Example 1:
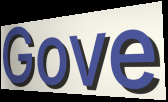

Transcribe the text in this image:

Gove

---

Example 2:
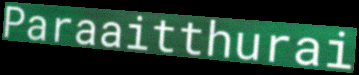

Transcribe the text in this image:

Paraaitthurai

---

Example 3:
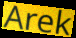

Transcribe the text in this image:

Arek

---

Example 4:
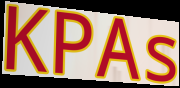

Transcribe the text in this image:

KPAs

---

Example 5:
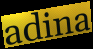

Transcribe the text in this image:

adina